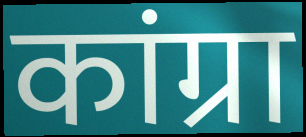
कांग्रा